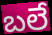
బలే